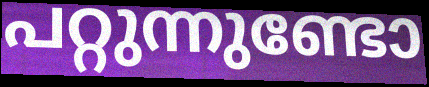
പറ്റുന്നുണ്ടോ